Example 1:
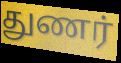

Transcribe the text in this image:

துணர்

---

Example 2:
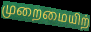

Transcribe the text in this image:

முறைமையிற்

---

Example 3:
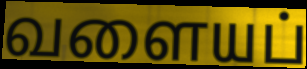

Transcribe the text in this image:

வளையப்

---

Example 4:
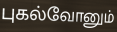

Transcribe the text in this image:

புகல்வோனும்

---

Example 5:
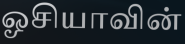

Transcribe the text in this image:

ஓசியாவின்